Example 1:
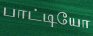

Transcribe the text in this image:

பாட்டியோ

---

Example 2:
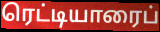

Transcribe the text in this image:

ரெட்டியாரைப்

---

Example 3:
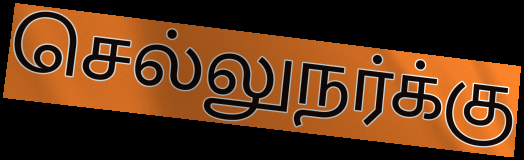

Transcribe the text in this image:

செல்லுநர்க்கு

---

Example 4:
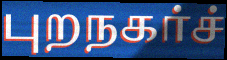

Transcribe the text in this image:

புறநகர்ச்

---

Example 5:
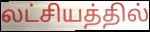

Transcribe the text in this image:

லட்சியத்தில்